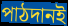
পাঠদানই